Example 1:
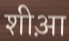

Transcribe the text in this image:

शीआ़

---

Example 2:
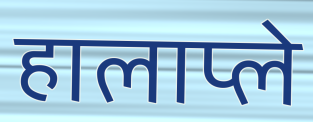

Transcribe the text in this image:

हालाप्ले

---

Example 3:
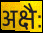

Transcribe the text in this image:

अक्षैः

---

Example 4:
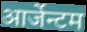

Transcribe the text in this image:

आर्जेन्टम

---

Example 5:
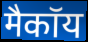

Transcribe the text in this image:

मैकॉय